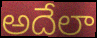
అదేలా